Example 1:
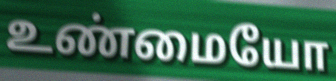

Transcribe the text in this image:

உண்மையோ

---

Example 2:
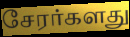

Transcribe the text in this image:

சேரர்களது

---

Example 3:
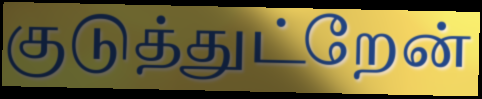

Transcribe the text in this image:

குடுத்துட்றேன்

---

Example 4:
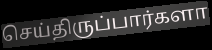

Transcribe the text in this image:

செய்திருப்பார்களா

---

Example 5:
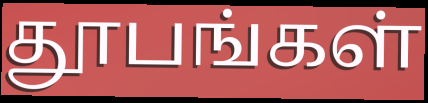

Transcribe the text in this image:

தூபங்கள்